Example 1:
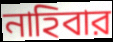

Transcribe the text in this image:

নাহিবার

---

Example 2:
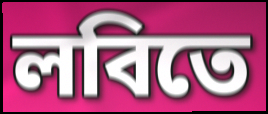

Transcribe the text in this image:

লবিতে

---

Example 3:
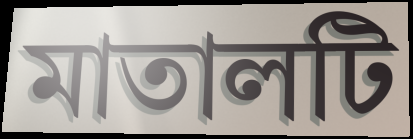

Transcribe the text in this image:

মাতালটি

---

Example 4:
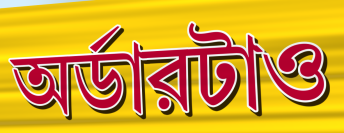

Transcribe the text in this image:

অর্ডারটাও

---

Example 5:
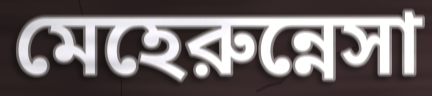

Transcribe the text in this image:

মেহেরুন্নেসা